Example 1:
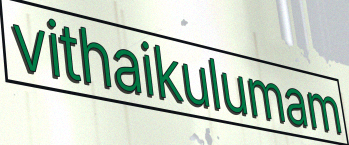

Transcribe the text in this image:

vithaikulumam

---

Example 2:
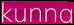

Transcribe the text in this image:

kunna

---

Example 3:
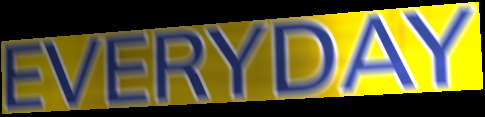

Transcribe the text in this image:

EVERYDAY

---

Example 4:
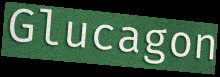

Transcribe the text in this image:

Glucagon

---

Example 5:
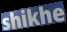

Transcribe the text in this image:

shikhe